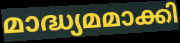
മാദ്ധ്യമമാക്കി